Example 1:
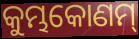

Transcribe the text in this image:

କୁମ୍ଭକୋଣମ୍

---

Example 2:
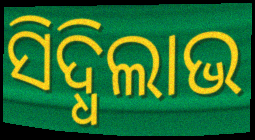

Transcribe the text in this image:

ସିଦ୍ଧିଲାଭ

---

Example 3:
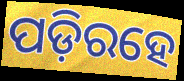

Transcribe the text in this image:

ପଡ଼ିରହେ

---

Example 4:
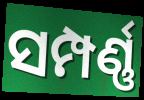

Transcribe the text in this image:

ସମ୍ପର୍ଣ୍ଣ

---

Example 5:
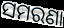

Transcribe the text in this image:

ସମରଣା